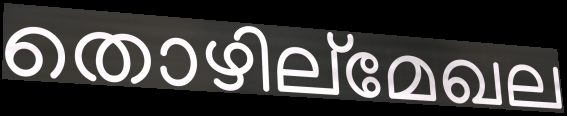
തൊഴില്മേഖല